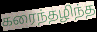
கரைந்தழிந்த